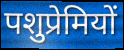
पशुप्रेमियों